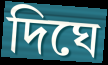
দিঘে